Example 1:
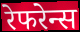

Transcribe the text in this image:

रेफरेन्स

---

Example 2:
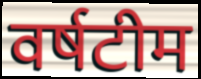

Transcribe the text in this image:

वर्षटीम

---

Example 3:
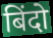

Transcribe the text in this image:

बिंदो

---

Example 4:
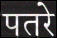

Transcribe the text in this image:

पतरे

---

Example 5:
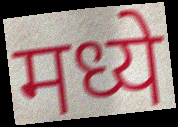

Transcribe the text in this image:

मध्ये